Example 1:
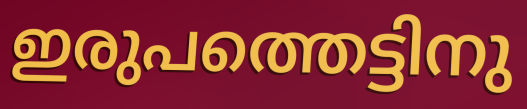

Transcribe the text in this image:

ഇരുപത്തെട്ടിനു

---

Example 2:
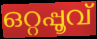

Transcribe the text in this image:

ഒറ്റപ്പൂവ്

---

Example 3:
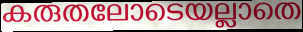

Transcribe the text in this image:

കരുതലോടെയല്ലാതെ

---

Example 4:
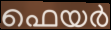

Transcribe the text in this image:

ഫെയർ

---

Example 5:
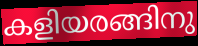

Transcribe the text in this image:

കളിയരങ്ങിനു